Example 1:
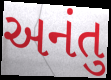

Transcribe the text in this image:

અનંતુ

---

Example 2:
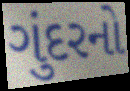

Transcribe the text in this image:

ગુંદરનો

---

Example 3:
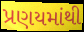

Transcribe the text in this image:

પ્રણયમાંથી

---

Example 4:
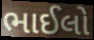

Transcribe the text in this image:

ભાઈલો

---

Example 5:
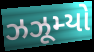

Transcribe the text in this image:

ઝઝૂમ્યો